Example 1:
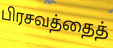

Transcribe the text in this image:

பிரசவத்தைத்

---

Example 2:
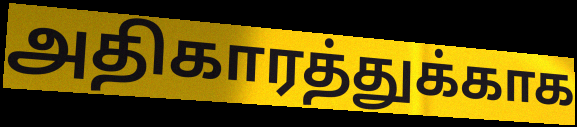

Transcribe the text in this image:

அதிகாரத்துக்காக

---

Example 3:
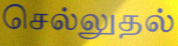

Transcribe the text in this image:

செல்லுதல்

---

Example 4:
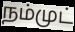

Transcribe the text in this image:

நம்முட்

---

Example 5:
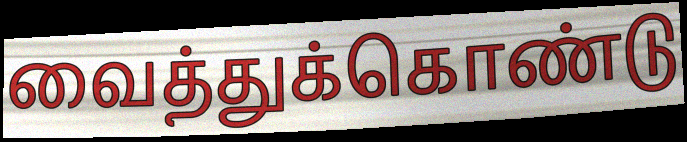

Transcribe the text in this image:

வைத்துக்கொண்டு